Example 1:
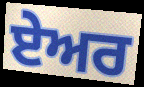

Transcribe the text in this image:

ਏਅਰ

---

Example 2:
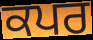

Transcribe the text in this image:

ਕਪਰ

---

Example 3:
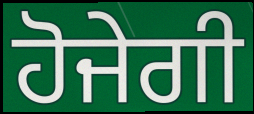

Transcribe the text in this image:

ਹੋਜੇਗੀ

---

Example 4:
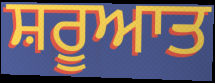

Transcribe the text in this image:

ਸ਼ਰੂਆਤ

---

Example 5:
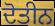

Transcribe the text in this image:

ਦੋਤੀਨ